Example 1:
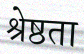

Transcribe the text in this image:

श्रेष्ठता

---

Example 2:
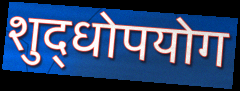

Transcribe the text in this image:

शुद्धोपयोग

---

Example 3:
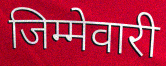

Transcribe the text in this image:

जिम्मेवारी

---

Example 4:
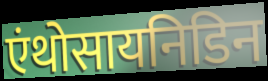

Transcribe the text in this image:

एंथोसायनिडिन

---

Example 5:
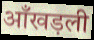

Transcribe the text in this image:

आँखड़ली